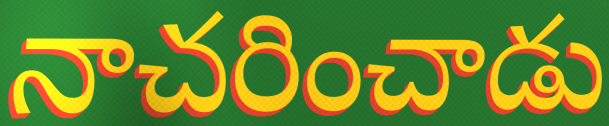
నాచరించాడు